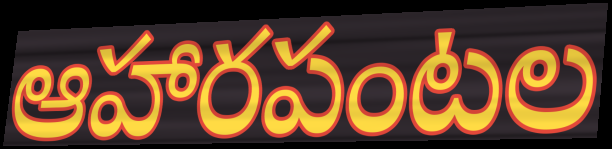
ఆహారపంటల